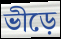
ভীড়ে